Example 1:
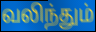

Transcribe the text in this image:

வலிந்தும்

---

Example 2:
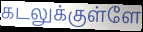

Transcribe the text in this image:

கடலுக்குள்ளே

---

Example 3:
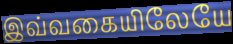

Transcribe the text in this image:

இவ்வகையிலேயே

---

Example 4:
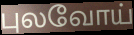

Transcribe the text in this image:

புலவோய்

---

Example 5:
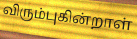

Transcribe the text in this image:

விரும்புகின்றாள்